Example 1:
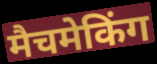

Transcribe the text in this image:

मैचमेकिंग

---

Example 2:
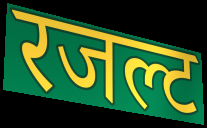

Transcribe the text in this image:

रजल्ट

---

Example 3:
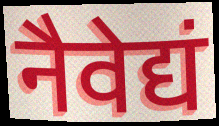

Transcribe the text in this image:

नैवेद्यं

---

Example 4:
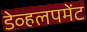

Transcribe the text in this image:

डेव्‍हलपमेंट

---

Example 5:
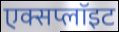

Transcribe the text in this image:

एक्सप्लॉइट